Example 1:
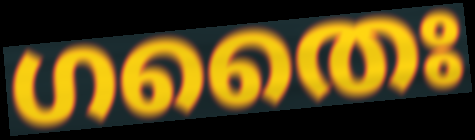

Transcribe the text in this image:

ഗതൈഃ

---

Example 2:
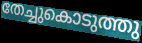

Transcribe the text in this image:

തേച്ചുകൊടുത്തു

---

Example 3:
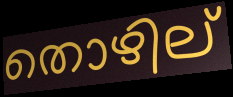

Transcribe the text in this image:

തൊഴില്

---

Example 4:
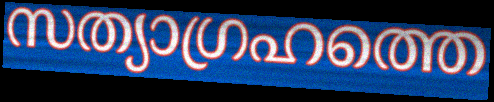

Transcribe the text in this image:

സത്യാഗ്രഹത്തെ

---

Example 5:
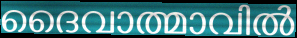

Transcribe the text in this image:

ദൈവാത്മാവിൽ